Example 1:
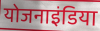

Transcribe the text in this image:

योजनाइंडिया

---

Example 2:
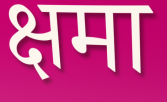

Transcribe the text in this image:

क्षमा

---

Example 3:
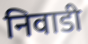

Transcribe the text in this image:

निवाडी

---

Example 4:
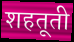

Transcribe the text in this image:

शहतूती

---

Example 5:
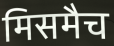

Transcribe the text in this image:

मिसमैच